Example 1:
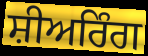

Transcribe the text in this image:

ਸ਼ੀਅਰਿੰਗ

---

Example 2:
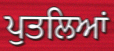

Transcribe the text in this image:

ਪੁਤਲਿਆਂ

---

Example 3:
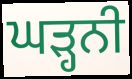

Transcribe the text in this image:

ਘੜ੍ਹਨੀ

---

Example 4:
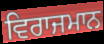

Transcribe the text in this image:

ਵਿਰਾਜਮਾਨ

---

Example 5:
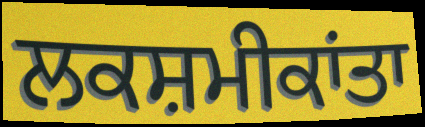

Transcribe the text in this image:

ਲਕਸ਼ਮੀਕਾਂਤਾ